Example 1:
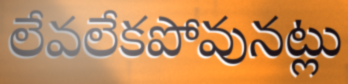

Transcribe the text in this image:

లేవలేకపోవునట్లు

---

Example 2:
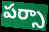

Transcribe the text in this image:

పర్సా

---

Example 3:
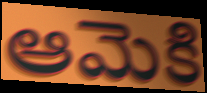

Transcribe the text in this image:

ఆమెకి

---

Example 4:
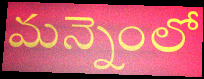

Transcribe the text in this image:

మన్నెంలో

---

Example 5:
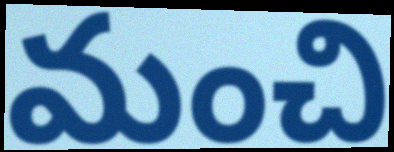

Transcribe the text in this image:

మంచి